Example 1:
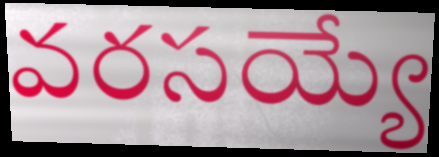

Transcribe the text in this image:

వరసయ్యే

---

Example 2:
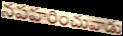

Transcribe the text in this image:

నపహరించువాడు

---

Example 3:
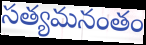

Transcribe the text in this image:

సత్యమనంతం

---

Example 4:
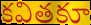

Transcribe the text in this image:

కవితకూ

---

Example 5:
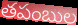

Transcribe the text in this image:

తపంబుల